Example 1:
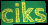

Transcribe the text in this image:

ciks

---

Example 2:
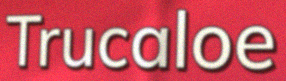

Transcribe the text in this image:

Trucaloe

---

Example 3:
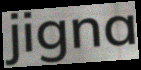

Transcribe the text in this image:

jigna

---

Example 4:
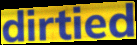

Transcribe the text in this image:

dirtied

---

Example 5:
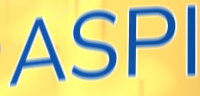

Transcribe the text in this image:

ASPI